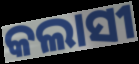
କଲାସୀ